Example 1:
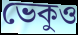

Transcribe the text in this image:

ভেকুও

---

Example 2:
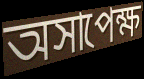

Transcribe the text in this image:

অসাপেক্ষ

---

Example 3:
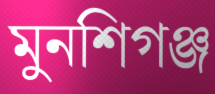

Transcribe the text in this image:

মুনশিগঞ্জ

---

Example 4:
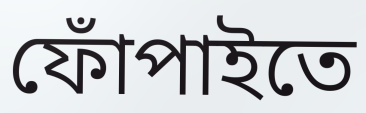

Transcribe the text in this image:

ফোঁপাইতে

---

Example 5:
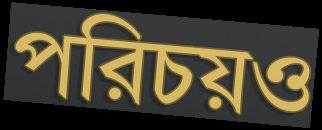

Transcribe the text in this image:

পরিচয়ও